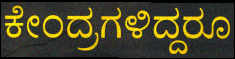
ಕೇಂದ್ರಗಳಿದ್ದರೂ